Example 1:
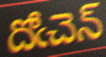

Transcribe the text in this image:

దోఁచెన్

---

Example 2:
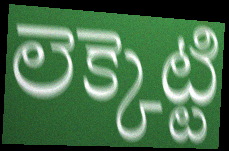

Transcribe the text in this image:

లెక్కెట్టి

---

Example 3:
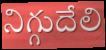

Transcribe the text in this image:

నిగ్గుదేలి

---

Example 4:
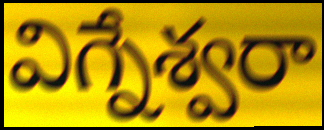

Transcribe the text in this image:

విగ్నేశ్వరా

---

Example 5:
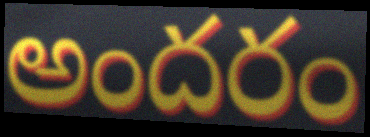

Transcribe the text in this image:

అందరం